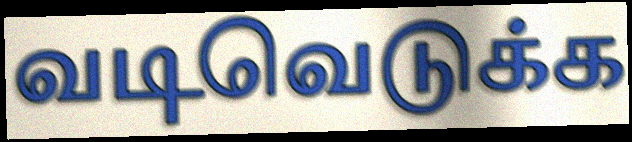
வடிவெடுக்க